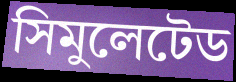
সিমুলেটেড